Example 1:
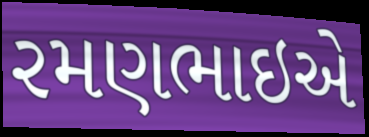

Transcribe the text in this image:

રમણભાઇએ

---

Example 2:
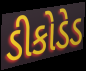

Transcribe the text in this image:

ડીકોડેડ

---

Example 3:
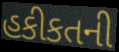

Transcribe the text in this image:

હકીકતની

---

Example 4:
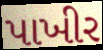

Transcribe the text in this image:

પાખીર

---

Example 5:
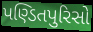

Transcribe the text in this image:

પણ્ડિતપુરિસો